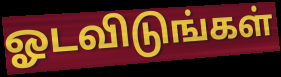
ஓடவிடுங்கள்